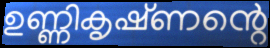
ഉണ്ണികൃഷ്‌ണന്റെ